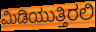
ಮಿಡಿಯುತ್ತಿರಲಿ